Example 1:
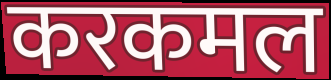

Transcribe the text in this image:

करकमल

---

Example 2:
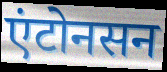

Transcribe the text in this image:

एंटोनसन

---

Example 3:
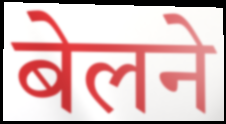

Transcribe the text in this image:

बेलने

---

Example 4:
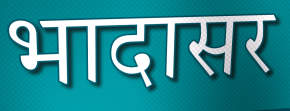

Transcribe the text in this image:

भादासर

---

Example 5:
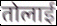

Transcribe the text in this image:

तोलाई